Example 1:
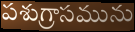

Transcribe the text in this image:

పశుగ్రాసమును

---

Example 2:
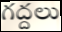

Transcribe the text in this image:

గద్దలు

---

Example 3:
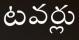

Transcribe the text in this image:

టవర్లు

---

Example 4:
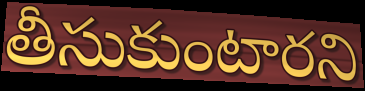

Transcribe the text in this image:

తీసుకుంటారని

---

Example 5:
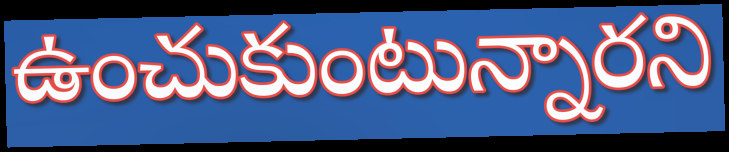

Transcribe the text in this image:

ఉంచుకుంటున్నారని